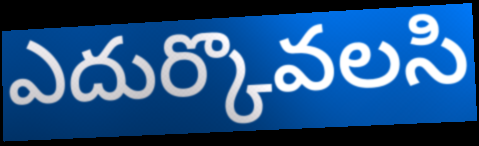
ఎదుర్కొవలసి